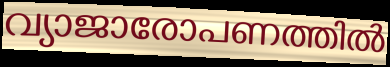
വ്യാജാരോപണത്തിൽ